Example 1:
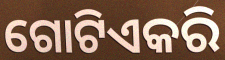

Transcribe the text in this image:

ଗୋଟିଏକରି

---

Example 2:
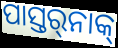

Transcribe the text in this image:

ପାସ୍ତର୍‍ନାକ୍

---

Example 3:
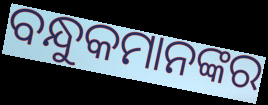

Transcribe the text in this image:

ବନ୍ଧୁକମାନଙ୍କର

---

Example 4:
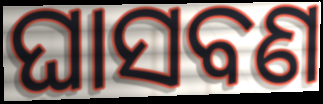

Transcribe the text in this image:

ଘାସବଣ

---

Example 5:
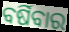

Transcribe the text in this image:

ବର୍ଷିବାର